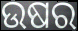
ଉଷର